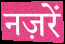
नज़रें